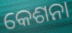
କେଶନା